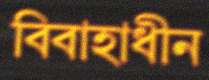
বিবাহাধীন